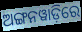
ଅଙ୍ଗନୱାଡ଼ିରେ